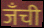
जँची